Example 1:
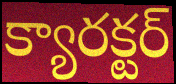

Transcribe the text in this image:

క్యారక్టర్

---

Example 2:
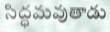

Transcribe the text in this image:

సిద్ధమవుతాడు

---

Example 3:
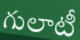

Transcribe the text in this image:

గులాటీ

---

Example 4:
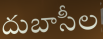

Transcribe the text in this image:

దుబాసీల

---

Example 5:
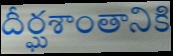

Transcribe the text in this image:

దీర్ఘశాంతానికి